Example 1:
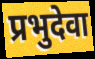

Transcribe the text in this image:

प्रभुदेवा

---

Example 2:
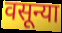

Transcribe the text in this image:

वसून्या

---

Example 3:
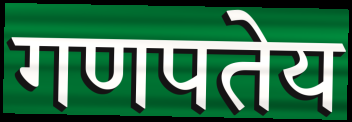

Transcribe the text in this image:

गणपतेय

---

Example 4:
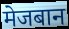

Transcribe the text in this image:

मेजबान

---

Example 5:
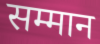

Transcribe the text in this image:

सम्मान